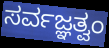
ಸರ್ವಜ್ಞತ್ವಂ